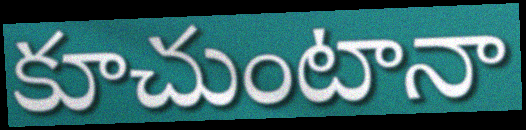
కూచుంటానా